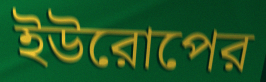
ইউরোপের